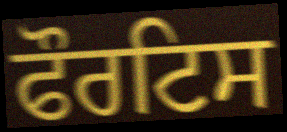
ਫੌਰਟਿਸ